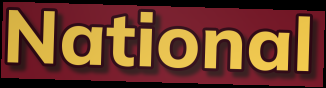
National